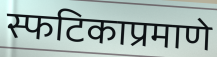
स्फटिकाप्रमाणे